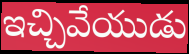
ఇచ్చివేయుడు